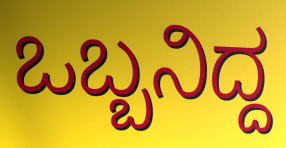
ಒಬ್ಬನಿದ್ದ